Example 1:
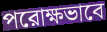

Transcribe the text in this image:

পরোক্ষভাবে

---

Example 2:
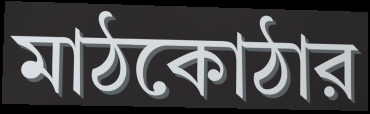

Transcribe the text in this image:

মাঠকোঠার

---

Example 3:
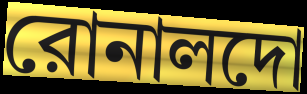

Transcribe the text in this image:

রোনালদো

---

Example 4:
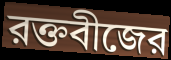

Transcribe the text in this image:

রক্তবীজের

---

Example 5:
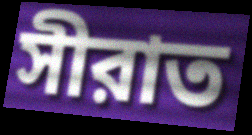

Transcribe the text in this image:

সীরাত